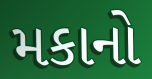
મકાનો